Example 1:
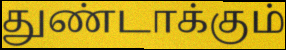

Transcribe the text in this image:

துண்டாக்கும்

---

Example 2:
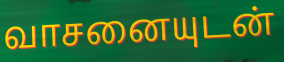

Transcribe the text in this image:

வாசனையுடன்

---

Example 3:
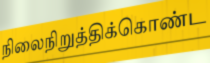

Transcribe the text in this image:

நிலைநிறுத்திக்கொண்ட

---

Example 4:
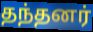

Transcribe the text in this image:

தந்தனர்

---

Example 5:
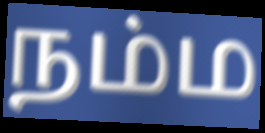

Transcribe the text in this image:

நம்ம